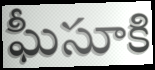
ఘీసూకి